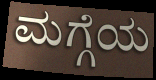
ಮಗ್ಗೆಯ